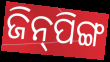
ଜିନ୍‌ପିଙ୍ଗ